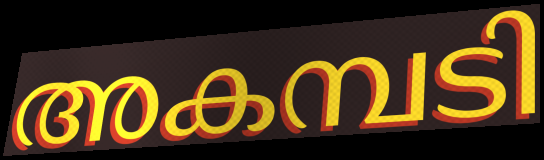
അകമ്പടി